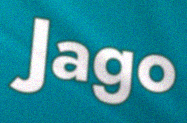
Jago